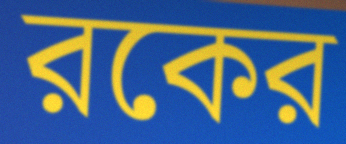
রকের